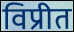
विप्रीत